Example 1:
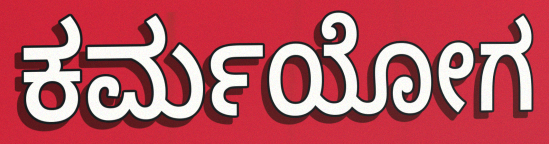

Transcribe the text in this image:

ಕರ್ಮಯೋಗ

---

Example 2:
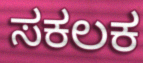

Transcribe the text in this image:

ಸಕಲಕ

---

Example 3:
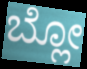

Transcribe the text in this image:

ಬ್ಲೋ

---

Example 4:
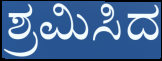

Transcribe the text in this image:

ಶ್ರಮಿಸಿದ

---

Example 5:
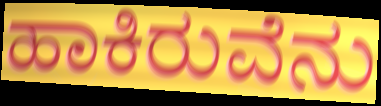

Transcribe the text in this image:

ಹಾಕಿರುವೆನು